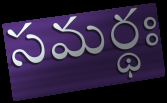
సమర్థః